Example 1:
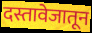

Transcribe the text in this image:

दस्तावेजातून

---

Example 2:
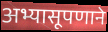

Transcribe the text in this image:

अभ्यासूपणाने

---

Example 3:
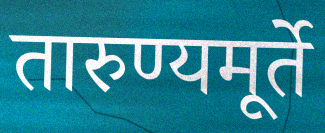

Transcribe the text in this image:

तारुण्यमूर्ते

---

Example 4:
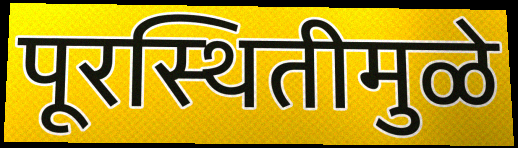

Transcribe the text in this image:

पूरस्थितीमुळे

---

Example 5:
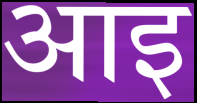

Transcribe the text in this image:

आइ